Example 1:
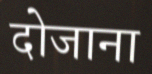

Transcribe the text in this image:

दोजाना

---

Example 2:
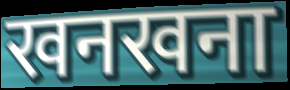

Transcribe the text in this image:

खनखना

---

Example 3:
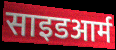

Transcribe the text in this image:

साइडआर्म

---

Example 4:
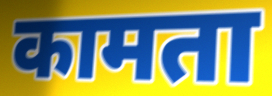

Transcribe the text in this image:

कामता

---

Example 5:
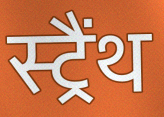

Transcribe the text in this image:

स्ट्रैंथ